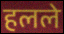
हलले